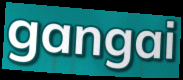
gangai